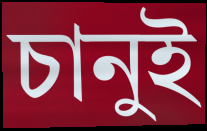
চানুই